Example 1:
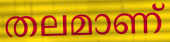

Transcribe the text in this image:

തലമാണ്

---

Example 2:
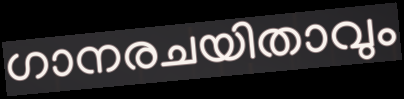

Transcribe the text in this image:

ഗാനരചയിതാവും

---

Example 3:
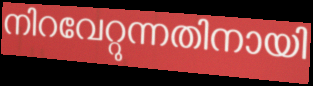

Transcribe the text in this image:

നിറവേറ്റുന്നതിനായി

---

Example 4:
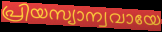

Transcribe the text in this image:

പ്രിയസ്യാന്വവായേ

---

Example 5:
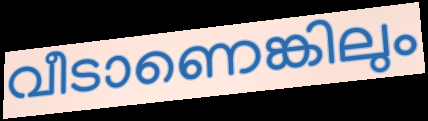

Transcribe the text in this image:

വീടാണെങ്കിലും